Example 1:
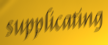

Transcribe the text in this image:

supplicating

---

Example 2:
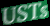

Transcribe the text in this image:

USTs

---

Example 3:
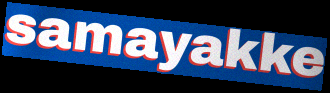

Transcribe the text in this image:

samayakke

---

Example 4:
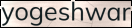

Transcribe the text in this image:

yogeshwar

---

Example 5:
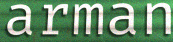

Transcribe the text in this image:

arman